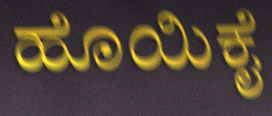
ಹೊಯಿಕೈ